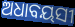
ଅଧାବୟସୀ